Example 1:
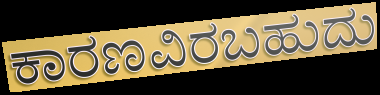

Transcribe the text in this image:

ಕಾರಣವಿರಬಹುದು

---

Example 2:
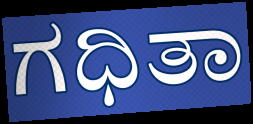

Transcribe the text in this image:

ಗಧಿತಾ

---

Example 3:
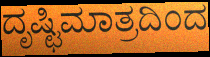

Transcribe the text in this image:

ದೃಷ್ಟಿಮಾತ್ರದಿಂದ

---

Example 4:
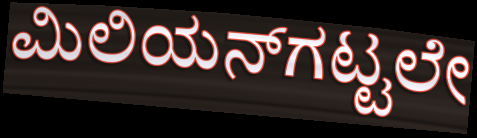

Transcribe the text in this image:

ಮಿಲಿಯನ್‌ಗಟ್ಟಲೇ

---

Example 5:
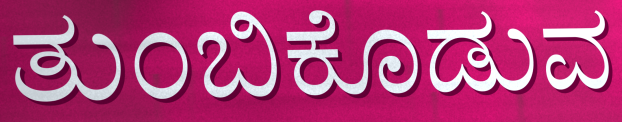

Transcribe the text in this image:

ತುಂಬಿಕೊಡುವ